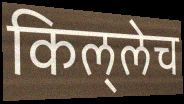
किल्लेच